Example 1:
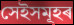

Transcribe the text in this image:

সেইসমূহৰ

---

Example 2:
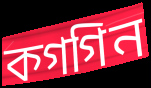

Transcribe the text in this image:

কগগিন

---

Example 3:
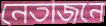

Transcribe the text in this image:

নেতাজনে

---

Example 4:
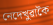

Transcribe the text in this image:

নেদেখুৱাকৈ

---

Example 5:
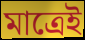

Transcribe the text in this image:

মাত্ৰেই